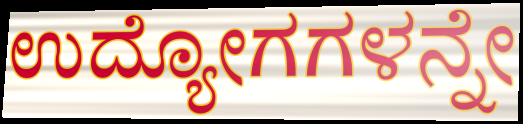
ಉದ್ಯೋಗಗಳನ್ನೇ